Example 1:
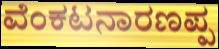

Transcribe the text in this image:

ವೆಂಕಟನಾರಣಪ್ಪ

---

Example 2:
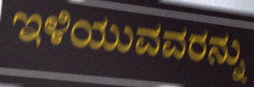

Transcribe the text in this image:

ಇಳಿಯುವವರನ್ನು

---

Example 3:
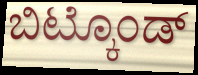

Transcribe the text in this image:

ಬಿಟ್ಕೊಂಡ್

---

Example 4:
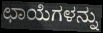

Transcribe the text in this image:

ಛಾಯೆಗಳನ್ನು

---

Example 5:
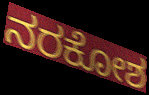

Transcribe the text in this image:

ನರಕೋಶ